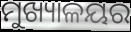
ମୁଖ୍ୟାଳୟର